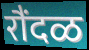
रौंदळ